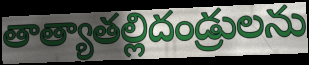
తాత్యాతల్లిదండ్రులను